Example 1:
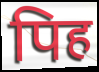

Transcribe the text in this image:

पिह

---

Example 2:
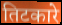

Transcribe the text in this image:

तिटकारे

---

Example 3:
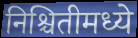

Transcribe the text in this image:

निश्चितीमध्ये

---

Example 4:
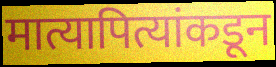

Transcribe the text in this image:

मात्यापित्यांकडून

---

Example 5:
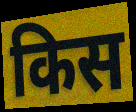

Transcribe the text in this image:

किस